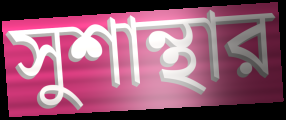
সুশান্থার